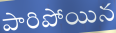
పారిపోయిన